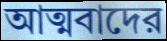
আত্মবাদের